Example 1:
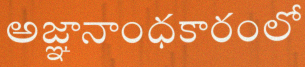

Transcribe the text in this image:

అజ్ఞానాంధకారంలో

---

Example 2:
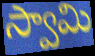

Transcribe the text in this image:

స్వామి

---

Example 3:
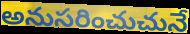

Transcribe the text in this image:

అనుసరించుచునే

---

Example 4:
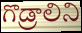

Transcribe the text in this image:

గొడ్రాలిని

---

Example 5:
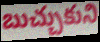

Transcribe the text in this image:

బుచ్చుకుని